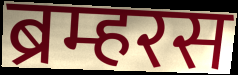
ब्रम्हरस